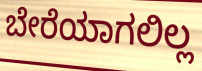
ಬೇರೆಯಾಗಲಿಲ್ಲ